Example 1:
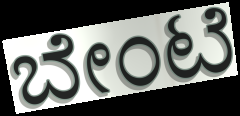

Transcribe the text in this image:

ಬೇಂಟೆ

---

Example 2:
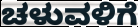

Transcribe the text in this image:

ಚಳುವಳಿಗೆ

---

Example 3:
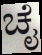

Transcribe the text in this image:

ಚೈ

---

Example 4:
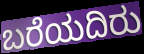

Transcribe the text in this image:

ಬರೆಯದಿರು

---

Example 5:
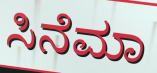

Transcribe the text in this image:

ಸಿನೆಮಾ